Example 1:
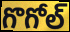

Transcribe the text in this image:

గొగోల్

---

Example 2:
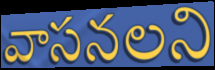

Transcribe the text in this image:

వాసనలని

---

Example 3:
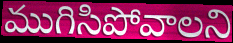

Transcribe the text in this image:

ముగిసిపోవాలని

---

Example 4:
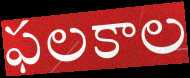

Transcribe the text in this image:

ఫలకాల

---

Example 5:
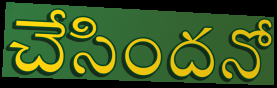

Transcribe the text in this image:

చేసిందనో